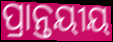
ପ୍ରାନ୍ତୟୀୟ